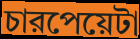
চারপেয়েটা